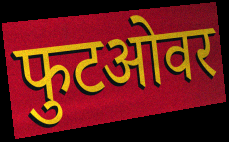
फुटओवर